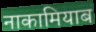
नाकामियाब